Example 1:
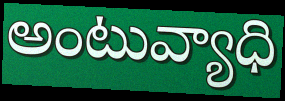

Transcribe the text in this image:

అంటువ్యాధి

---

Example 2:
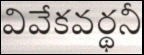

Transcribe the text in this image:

వివేకవర్థనీ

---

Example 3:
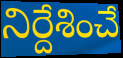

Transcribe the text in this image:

నిర్దేశించే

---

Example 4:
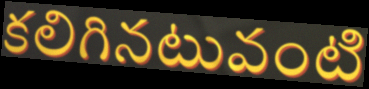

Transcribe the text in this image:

కలిగినటువంటి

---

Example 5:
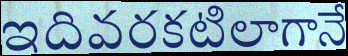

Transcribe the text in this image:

ఇదివరకటిలాగానే